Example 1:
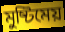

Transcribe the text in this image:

মুষ্টিমেয়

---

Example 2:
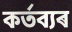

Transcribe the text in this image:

কৰ্তব্যৰ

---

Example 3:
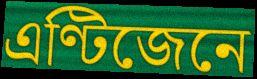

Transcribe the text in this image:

এণ্টিজেনে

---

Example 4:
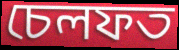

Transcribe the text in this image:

চেলফত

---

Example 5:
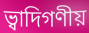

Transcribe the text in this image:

ভ্বাদিগণীয়